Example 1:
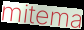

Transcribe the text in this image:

mitema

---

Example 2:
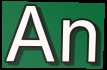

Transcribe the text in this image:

An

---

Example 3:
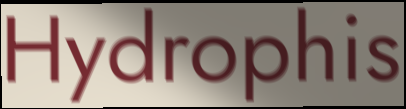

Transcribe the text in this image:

Hydrophis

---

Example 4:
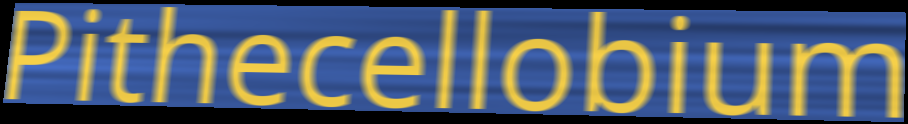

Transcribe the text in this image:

Pithecellobium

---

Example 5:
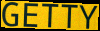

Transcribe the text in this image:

GETTY